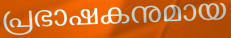
പ്രഭാഷകനുമായ